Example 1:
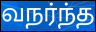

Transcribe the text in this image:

வநர்ந்த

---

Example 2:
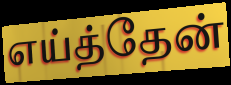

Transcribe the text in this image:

எய்த்தேன்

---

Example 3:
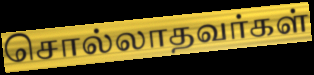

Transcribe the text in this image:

சொல்லாதவர்கள்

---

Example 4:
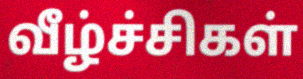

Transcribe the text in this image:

வீழ்ச்சிகள்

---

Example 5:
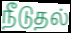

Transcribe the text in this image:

நீடுதல்